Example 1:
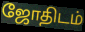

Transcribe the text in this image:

ஜோதிடம்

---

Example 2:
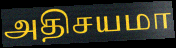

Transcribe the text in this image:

அதிசயமா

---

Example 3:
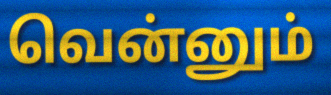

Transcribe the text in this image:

வென்னும்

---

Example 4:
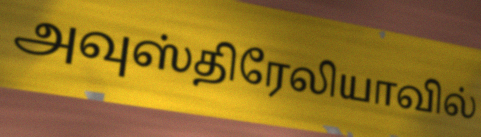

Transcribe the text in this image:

அவுஸ்திரேலியாவில்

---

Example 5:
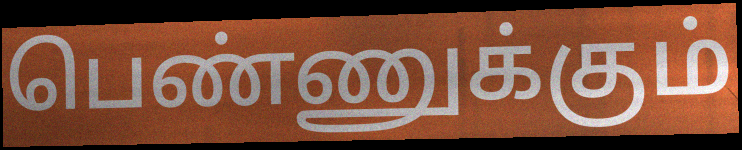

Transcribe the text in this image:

பெண்ணுக்கும்